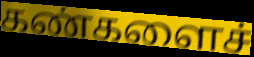
கண்களைச்